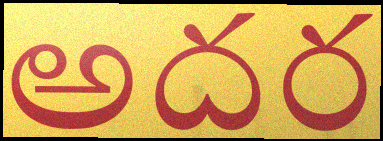
అదర